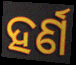
ହର୍ଣ